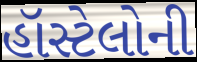
હૉસ્ટેલોની